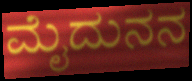
ಮೈದುನನ